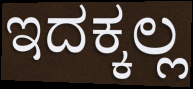
ಇದಕ್ಕಲ್ಲ